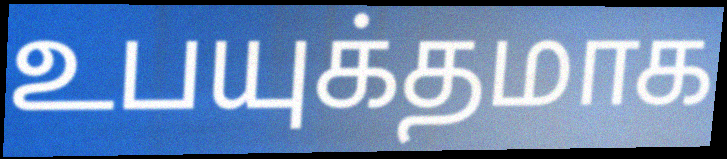
உபயுக்தமாக